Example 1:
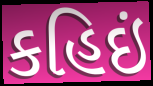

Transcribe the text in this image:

કહિઇં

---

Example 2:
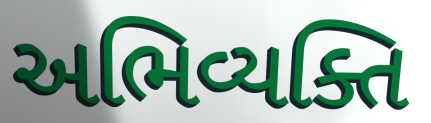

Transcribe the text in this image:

અભિવ્યક્તિ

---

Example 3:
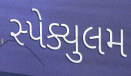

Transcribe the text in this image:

સ્પેક્યુલમ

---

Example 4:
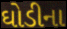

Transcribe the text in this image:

ઘોડીના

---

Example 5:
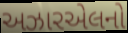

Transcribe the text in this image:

અઝારએલનો